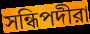
সন্ধিপদীরা